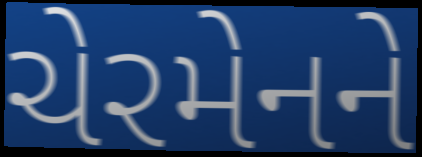
ચેરમેનને